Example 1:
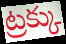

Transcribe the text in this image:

ట్రక్కు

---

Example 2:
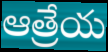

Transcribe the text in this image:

ఆత్రేయ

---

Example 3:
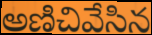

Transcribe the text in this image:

అణిచివేసిన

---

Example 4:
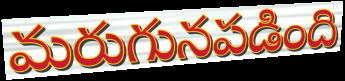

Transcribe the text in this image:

మరుగునపడింది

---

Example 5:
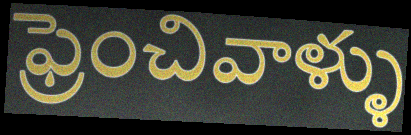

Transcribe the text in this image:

ఫ్రెంచివాళ్ళు